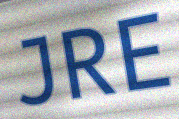
JRE